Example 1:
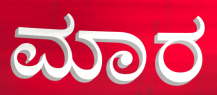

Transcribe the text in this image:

ಮಾರ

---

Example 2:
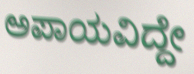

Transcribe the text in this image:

ಅಪಾಯವಿದ್ದೇ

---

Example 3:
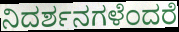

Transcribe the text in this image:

ನಿದರ್ಶನಗಳೆಂದರೆ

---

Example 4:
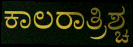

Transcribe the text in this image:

ಕಾಲರಾತ್ರಿಶ್ಚ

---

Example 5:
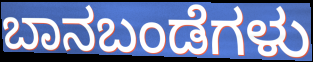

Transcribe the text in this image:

ಬಾನಬಂಡೆಗಳು